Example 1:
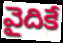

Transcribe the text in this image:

వైదికే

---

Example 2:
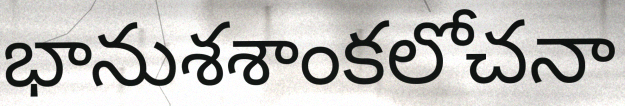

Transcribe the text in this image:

భానుశశాంకలోచనా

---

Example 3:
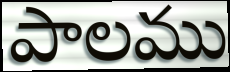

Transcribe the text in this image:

పాలము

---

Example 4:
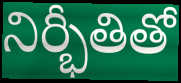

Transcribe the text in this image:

నిర్భీతితో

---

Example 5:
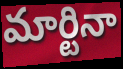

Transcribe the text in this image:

మార్టినా